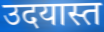
उदयास्त